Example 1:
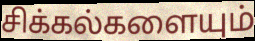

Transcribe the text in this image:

சிக்கல்களையும்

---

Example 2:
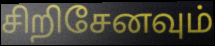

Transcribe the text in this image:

சிறிசேனவும்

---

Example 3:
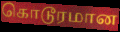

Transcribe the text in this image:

கொடூரமான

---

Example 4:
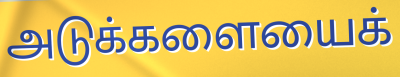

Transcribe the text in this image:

அடுக்களையைக்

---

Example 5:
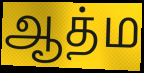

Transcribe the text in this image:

ஆத்ம